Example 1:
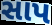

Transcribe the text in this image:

સાપ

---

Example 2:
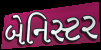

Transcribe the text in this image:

બેનિસ્ટર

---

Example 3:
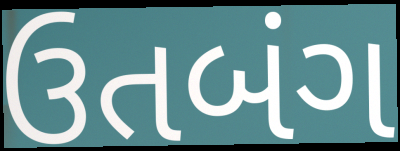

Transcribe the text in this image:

ઉતબંગ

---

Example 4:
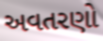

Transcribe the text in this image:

અવતરણો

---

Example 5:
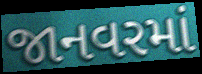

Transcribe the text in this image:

જાનવરમાં